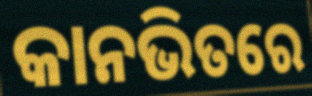
କାନଭିତରେ